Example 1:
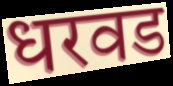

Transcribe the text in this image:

धरवड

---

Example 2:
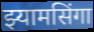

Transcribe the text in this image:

झ्यामसिंगा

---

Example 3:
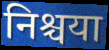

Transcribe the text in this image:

निश्चया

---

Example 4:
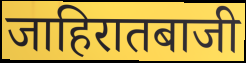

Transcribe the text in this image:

जाहिरातबाजी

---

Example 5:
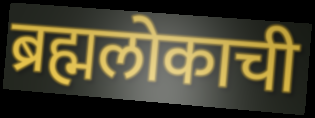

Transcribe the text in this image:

ब्रह्मलोकाची